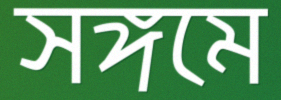
সঙ্গমে